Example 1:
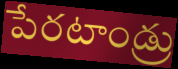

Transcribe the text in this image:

పేరటాండ్రు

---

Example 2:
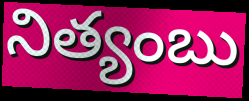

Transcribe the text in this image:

నిత్యంబు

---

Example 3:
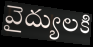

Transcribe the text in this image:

వైద్యులకి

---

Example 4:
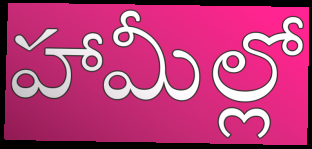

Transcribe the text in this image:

హామీల్లో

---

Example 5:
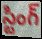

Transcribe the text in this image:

స్టింగ్